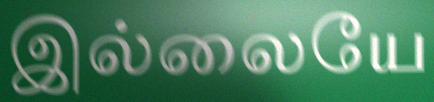
இல்லையே